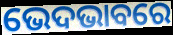
ଭେଦଭାବରେ